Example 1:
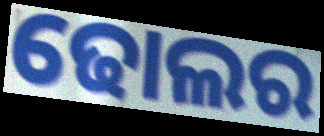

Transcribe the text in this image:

ଢୋଲର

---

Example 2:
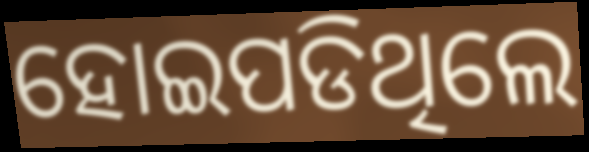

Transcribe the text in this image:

ହୋଇପଡିଥିଲେ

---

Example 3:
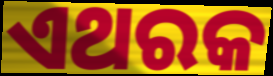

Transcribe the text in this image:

ଏଥରକ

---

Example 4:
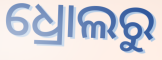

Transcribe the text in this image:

ଧ୍ରୋଲରୁ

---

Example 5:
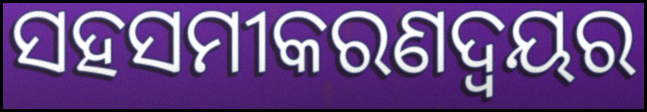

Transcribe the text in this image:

ସହସମୀକରଣଦ୍ୱୟର